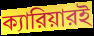
ক্যারিয়ারই